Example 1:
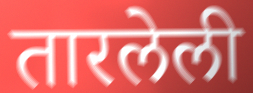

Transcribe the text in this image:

तारलेली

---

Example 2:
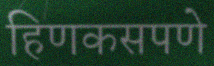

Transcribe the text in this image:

हिणकसपणे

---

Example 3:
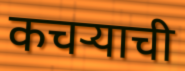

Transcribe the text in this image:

कचर्‍याची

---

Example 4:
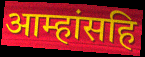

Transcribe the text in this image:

आम्हांसहि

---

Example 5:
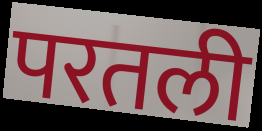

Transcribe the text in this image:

परतली